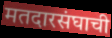
मतदारसंघाची